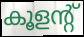
കൂളന്റ്